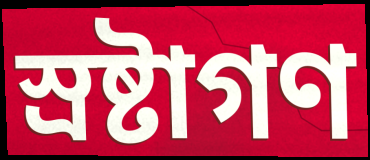
স্রষ্টাগণ